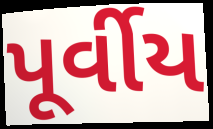
પૂર્વીય